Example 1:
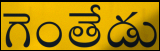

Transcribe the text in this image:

గెంతేడు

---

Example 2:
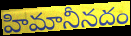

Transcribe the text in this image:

హిమానీనదం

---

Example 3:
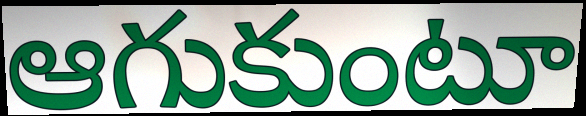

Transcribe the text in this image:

ఆగుకుంటూ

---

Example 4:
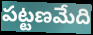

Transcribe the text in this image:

పట్టణమేది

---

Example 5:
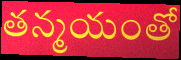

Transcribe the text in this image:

తన్మయంతో